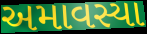
અમાવસ્યા